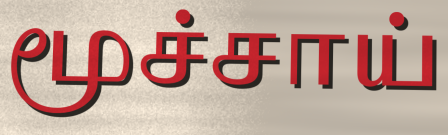
மூச்சாய்